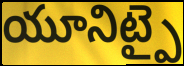
యూనిట్పై